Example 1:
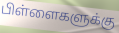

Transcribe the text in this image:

பிள்ளைகளுக்கு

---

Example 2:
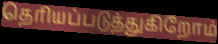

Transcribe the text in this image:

தெரியப்படுத்துகிறோம்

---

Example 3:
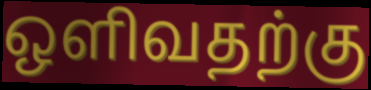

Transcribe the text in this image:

ஒளிவதற்கு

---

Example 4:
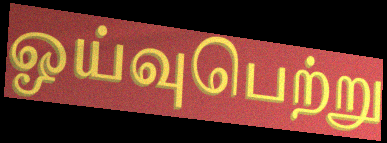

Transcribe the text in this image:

ஓய்வுபெற்று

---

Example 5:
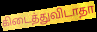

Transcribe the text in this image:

கிடைத்துவிடாதா